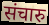
संचारु